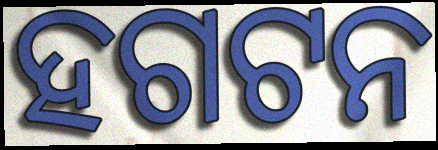
ହଗଟନ